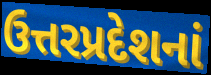
ઉત્તરપ્રદેશનાં